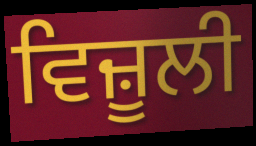
ਵਿਜ਼ੂਲੀ